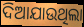
ଦିଆଯାଉଥିଲା